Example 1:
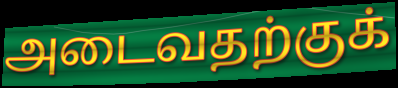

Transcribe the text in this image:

அடைவதற்குக்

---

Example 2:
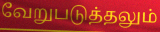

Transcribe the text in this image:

வேறுபடுத்தலும்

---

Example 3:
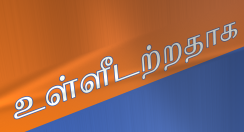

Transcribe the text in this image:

உள்ளீடற்றதாக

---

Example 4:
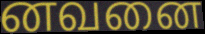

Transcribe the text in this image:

னவனை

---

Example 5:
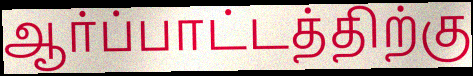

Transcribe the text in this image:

ஆர்ப்பாட்டத்திற்கு